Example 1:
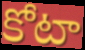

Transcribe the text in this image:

కోటా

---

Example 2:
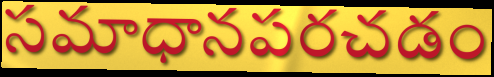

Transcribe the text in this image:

సమాధానపరచడం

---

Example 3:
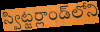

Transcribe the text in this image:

స్విట్జర్లాండ్‌లోని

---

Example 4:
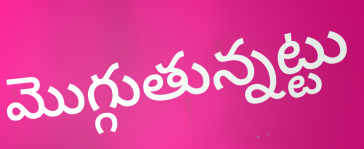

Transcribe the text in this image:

మొగ్గుతున్నట్టు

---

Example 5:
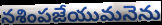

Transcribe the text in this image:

నశింపజేయుమనెను